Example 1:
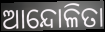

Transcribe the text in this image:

ଆନ୍ଦୋଳିତା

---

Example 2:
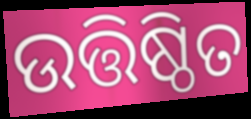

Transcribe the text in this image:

ଉତ୍ତିଷ୍ଠିତ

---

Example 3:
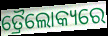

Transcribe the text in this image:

ତ୍ରୈଲୋକ୍ୟରେ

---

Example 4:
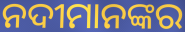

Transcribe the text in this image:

ନଦୀମାନଙ୍କର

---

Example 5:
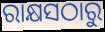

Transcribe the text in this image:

ରାକ୍ଷସଠାରୁ